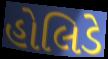
હોલિડે